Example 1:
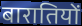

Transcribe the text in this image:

बारातियों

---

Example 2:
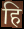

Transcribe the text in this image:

हि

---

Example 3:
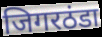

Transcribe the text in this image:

जिगरठंडा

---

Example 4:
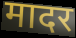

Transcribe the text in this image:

मादर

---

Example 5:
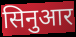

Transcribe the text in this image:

सिनुआर